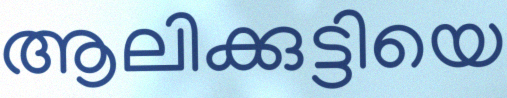
ആലിക്കുട്ടിയെ